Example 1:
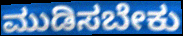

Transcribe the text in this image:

ಮುಡಿಸಬೇಕು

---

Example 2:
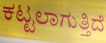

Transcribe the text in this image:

ಕಟ್ಟಲಾಗುತ್ತಿದೆ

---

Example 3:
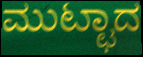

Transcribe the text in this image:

ಮುಟ್ಟಾದ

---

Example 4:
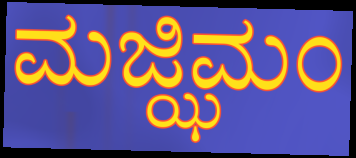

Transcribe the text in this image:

ಮಜ್ಝಿಮಂ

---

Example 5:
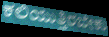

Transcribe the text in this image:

ಕಲಿಯುತ್ತಿರಬೇಕು